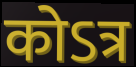
कोऽत्र